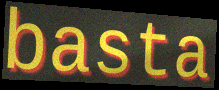
basta